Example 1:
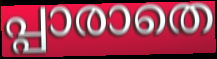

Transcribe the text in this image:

പ്പാരാതെ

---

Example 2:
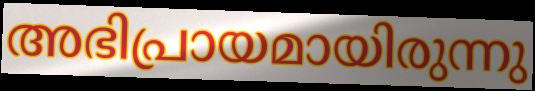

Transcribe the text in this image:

അഭിപ്രായമായിരുന്നു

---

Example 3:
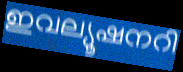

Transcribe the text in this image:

ഇവല്യൂഷനറി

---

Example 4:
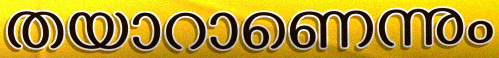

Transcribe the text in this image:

തയാറാണെന്നും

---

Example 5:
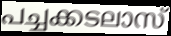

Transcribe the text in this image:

പച്ചക്കടലാസ്